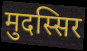
मुदस्सिर